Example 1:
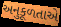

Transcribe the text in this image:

અનુકૂળતાએ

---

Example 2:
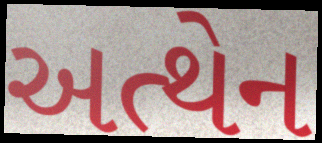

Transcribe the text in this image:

અત્થેન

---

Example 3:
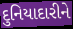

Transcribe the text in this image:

દુનિયાદારીને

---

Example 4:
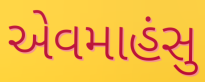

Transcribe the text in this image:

એવમાહંસુ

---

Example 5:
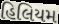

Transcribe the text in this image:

હિલિયમ